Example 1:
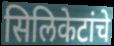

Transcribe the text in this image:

सिलिकेटांचे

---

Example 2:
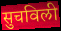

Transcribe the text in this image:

सुचविली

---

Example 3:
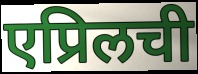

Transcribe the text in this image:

एप्रिलची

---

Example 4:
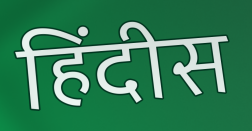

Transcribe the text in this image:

हिंदीस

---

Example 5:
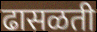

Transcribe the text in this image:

ढासळती